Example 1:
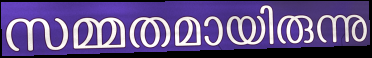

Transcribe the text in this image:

സമ്മതമായിരുന്നു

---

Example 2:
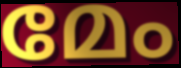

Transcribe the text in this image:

മേം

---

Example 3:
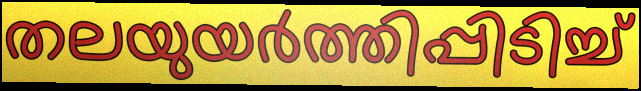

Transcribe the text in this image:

തലയുയർത്തിപ്പിടിച്ച്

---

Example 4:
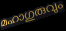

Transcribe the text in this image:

മഹാഗുരുവും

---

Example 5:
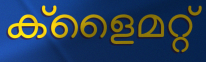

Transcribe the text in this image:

ക്ളൈമറ്റ്